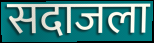
सदाजला